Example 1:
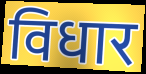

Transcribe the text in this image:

विधार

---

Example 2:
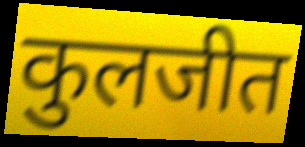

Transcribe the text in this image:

कुलजीत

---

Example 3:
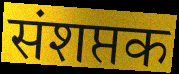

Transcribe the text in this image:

संशप्तक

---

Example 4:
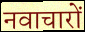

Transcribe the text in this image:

नवाचारों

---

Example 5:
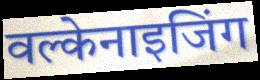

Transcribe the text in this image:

वल्केनाइजिंग